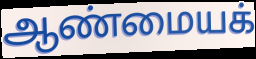
ஆண்மையக்